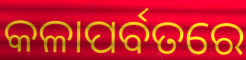
କଳାପର୍ବତରେ